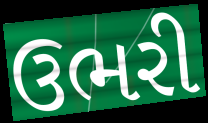
ઉભરી